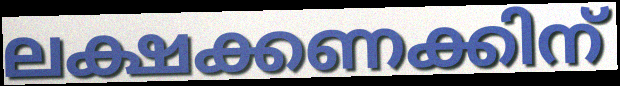
ലക്ഷക്കണക്കിന്